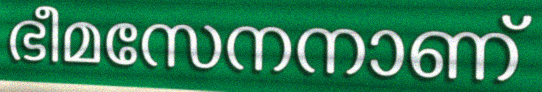
ഭീമസേനനാണ്